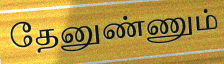
தேனுண்ணும்